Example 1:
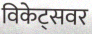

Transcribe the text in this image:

विकेट्सवर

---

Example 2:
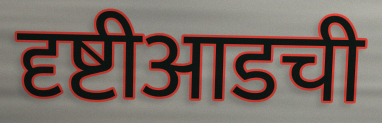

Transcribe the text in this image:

दृष्टीआडची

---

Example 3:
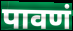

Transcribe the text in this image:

पावणं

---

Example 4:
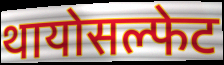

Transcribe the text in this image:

थायोसल्फेट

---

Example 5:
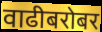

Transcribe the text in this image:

वाढीबरोबर